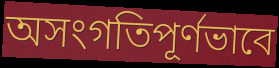
অসংগতিপূর্ণভাবে